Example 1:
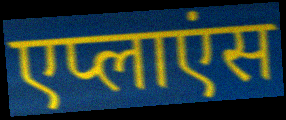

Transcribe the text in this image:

एप्लाएंस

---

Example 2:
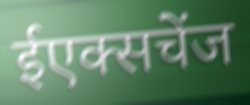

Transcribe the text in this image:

ईएक्सचेंज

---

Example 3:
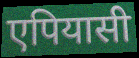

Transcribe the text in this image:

एपियासी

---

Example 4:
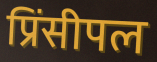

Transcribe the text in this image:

प्रिंसीपल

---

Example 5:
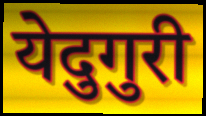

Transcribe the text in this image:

येदुगुरी